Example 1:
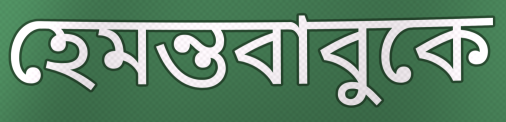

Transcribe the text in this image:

হেমন্তবাবুকে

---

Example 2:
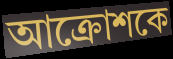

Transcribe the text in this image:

আক্রোশকে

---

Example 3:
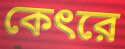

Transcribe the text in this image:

কেৎরে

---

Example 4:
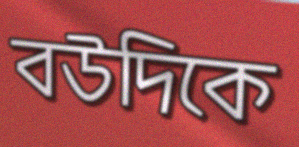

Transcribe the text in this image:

বউদিকে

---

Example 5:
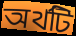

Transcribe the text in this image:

অর্থটি